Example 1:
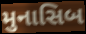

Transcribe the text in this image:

મુનાસિબ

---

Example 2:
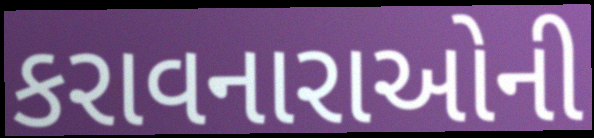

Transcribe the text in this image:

કરાવનારાઓની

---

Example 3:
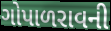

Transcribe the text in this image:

ગોપાળરાવની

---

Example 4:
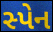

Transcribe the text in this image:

સ્પેન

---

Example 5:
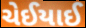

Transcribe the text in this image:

ચેઈયાઈ